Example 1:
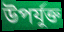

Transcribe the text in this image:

উপৰ্যুক্ত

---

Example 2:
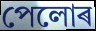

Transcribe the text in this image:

পেলোৰ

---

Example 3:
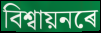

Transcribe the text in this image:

বিশ্বায়নৰে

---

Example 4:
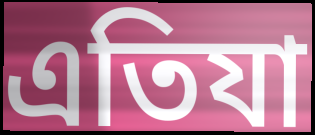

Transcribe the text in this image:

এতিযা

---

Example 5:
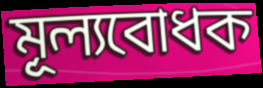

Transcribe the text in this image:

মূল্যবোধক